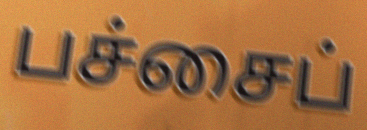
பச்சைப்